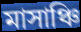
মাসাঞ্চি